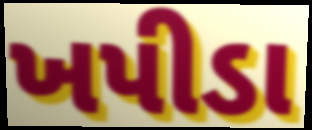
ખપીડા